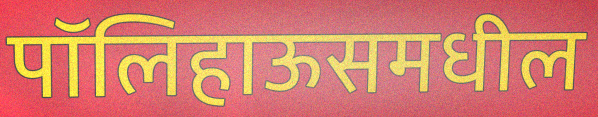
पॉलिहाऊसमधील